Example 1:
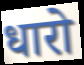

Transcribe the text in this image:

धारो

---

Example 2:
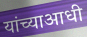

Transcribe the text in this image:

यांच्याआधी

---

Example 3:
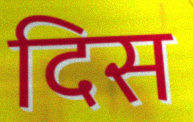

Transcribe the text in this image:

दिस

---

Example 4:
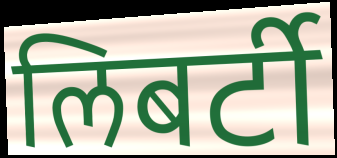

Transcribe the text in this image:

लिबर्टी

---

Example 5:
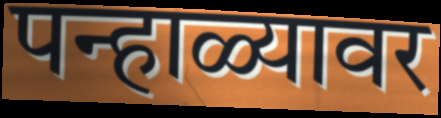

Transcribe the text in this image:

पन्हाळ्यावर